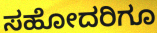
ಸಹೋದರಿಗೂ